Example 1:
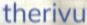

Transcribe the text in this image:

therivu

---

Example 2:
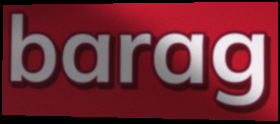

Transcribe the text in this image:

barag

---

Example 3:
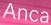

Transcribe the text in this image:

Anca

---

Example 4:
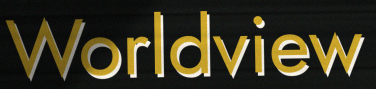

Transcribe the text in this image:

Worldview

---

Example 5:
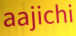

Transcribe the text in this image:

aajichi